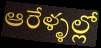
ఆరేళ్ళల్లో